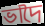
ভাদৈ